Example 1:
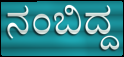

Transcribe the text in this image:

ನಂಬಿದ್ದ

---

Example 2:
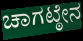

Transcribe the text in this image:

ಚಾಗಟ್ಠೇನ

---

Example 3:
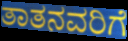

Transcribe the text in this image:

ತಾತನವರಿಗೆ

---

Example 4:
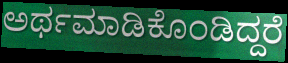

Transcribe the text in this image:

ಅರ್ಥಮಾಡಿಕೊಂಡಿದ್ದರೆ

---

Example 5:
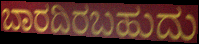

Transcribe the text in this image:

ಬಾರದಿರಬಹುದು